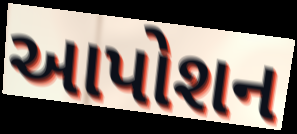
આપોશન